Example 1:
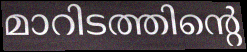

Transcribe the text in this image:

മാറിടത്തിന്റെ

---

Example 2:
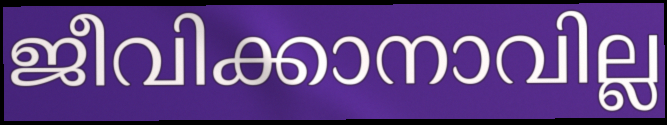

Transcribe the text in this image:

ജീവിക്കാനാവില്ല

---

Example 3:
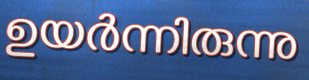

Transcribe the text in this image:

ഉയർന്നിരുന്നു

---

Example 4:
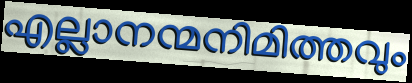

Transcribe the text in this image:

എല്ലാനന്മനിമിത്തവും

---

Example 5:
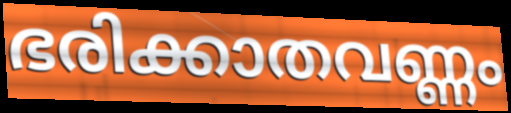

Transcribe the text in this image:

ഭരിക്കാതവണ്ണം